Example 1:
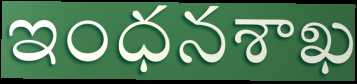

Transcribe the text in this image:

ఇంధనశాఖ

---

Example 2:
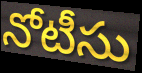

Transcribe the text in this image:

నోటీసు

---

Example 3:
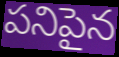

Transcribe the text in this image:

పనిపైన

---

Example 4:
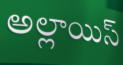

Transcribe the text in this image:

అల్లాయిస్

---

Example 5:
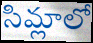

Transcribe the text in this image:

సిమ్లాలో